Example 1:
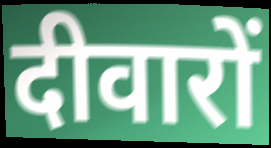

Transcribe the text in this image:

दीवारों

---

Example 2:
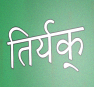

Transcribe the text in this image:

तिर्यक्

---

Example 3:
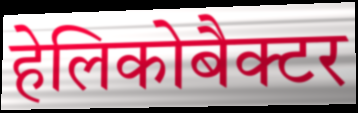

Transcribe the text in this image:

हेलिकोबैक्टर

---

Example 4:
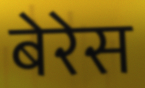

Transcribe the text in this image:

बेरेस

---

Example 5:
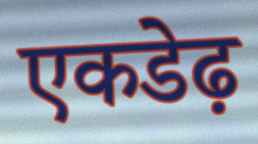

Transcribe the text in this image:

एकडेढ़